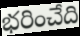
భరించేది